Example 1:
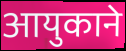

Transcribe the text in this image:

आयुकाने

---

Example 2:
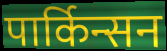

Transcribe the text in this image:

पार्किन्सन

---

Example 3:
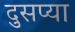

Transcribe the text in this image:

दुसप्या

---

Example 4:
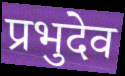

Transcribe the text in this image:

प्रभुदेव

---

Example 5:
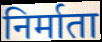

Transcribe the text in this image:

निर्माता